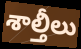
శాల్తీలు